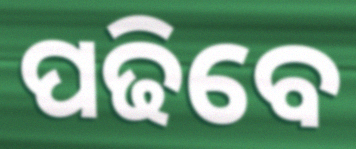
ପଢିବେ